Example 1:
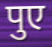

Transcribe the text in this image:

पुए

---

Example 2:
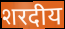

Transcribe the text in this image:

शरदीय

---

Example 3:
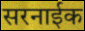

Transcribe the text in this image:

सरनाईक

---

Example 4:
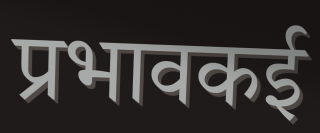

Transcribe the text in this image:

प्रभावकई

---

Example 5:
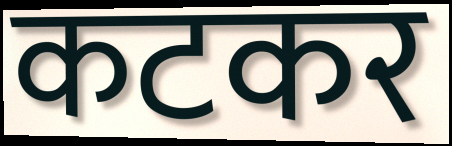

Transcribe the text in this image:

कटकर